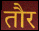
तौर